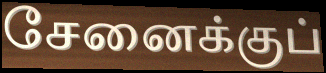
சேனைக்குப்